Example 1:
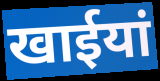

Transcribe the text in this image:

खाईयां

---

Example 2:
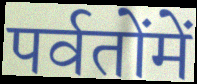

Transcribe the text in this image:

पर्वतोंमें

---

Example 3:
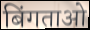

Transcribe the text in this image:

बिंगताओ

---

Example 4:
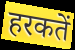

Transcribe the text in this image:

हरकतें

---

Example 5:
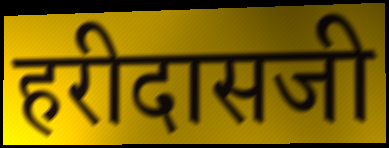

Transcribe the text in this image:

हरीदासजी